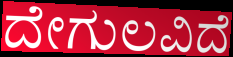
ದೇಗುಲವಿದೆ